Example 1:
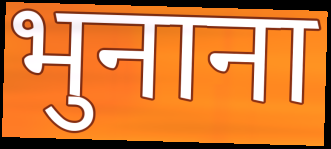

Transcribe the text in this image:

भुनाना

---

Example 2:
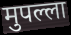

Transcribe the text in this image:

मुपल्ला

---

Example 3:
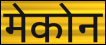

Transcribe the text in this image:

मेकोन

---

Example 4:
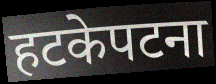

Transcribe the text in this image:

हटकेपटना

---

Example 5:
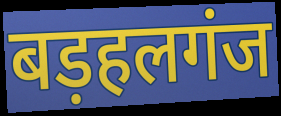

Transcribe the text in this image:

बड़हलगंज